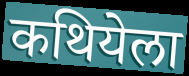
कथियेला